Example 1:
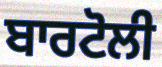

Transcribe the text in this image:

ਬਾਰਟੋਲੀ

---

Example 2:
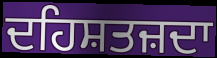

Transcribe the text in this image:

ਦਹਿਸ਼ਤਜ਼ਦਾ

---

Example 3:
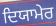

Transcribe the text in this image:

ਦਿਯਾਮੇਰ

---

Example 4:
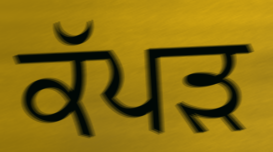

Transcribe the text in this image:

ਕੱਪੜ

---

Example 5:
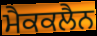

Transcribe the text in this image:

ਮੈਕਕਲੈਨ